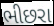
ભીછરા